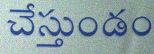
చేస్తుండం